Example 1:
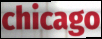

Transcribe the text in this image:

chicago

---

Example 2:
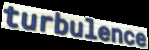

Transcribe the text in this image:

turbulence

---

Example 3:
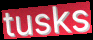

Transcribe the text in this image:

tusks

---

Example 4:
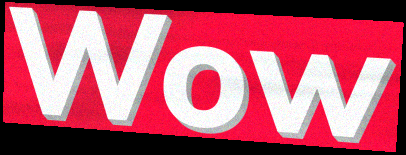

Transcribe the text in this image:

Wow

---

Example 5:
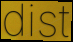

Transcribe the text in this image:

dist